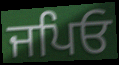
ਜਪਿਓ